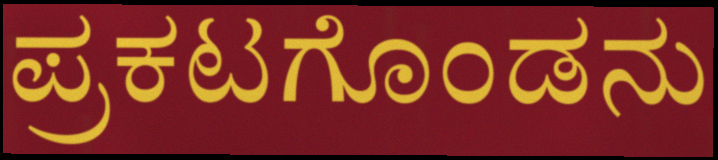
ಪ್ರಕಟಗೊಂಡನು